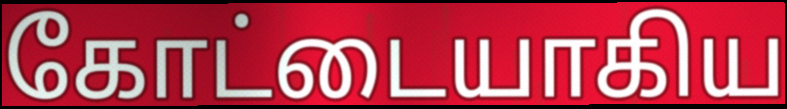
கோட்டையாகிய